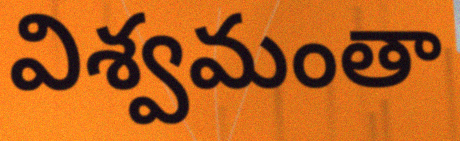
విశ్వమంతా